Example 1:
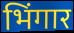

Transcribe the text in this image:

भिंगार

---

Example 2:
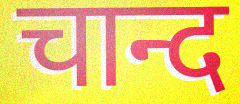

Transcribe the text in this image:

चान्द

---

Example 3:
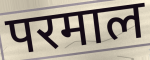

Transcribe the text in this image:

परमाल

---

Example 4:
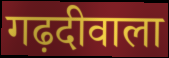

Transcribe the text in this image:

गढ़दीवाला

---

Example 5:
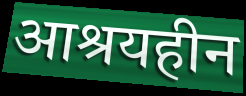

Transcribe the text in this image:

आश्रयहीन